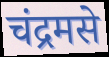
चंद्रमसे